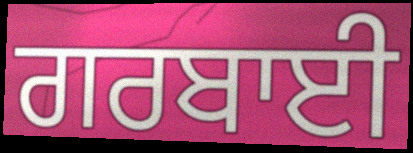
ਗਰਬਾਈ